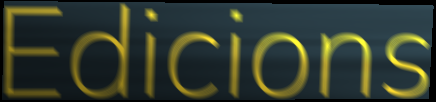
Edicions